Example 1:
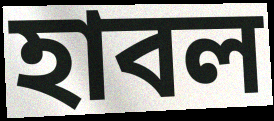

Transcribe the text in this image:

হাবল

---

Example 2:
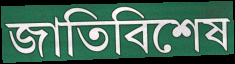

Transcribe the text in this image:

জাতিবিশেষ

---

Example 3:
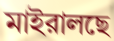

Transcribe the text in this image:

মাইরালছে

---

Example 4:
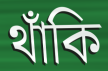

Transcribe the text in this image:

থাঁকি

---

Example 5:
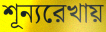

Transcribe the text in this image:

শূন্যরেখায়